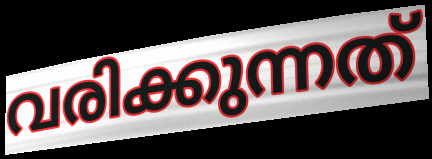
വരിക്കുന്നത്